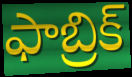
ఫాబ్రిక్